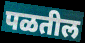
पळतील